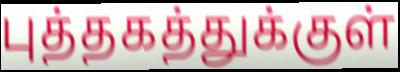
புத்தகத்துக்குள்